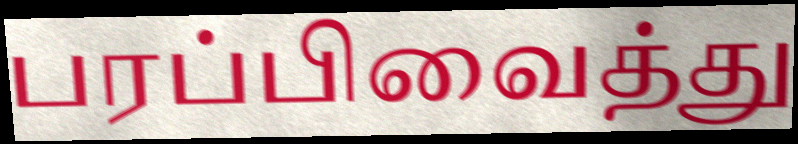
பரப்பிவைத்து